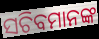
ସଚିବମାନଙ୍କ